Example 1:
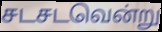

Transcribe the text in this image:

சடசடவென்று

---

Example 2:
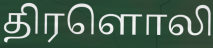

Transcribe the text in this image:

திரளொலி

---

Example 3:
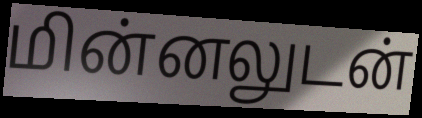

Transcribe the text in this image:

மின்னலுடன்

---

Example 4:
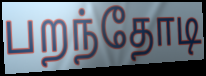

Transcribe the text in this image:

பறந்தோடி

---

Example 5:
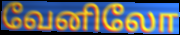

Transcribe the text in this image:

வேனிலோ